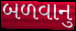
બળવાનુ